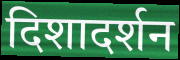
दिशादर्शन